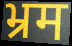
भ्रम